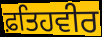
ਫ਼ਤਿਹਵੀਰ